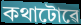
কথাটোৱে